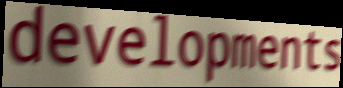
developments